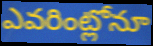
ఎవరింట్లోనూ